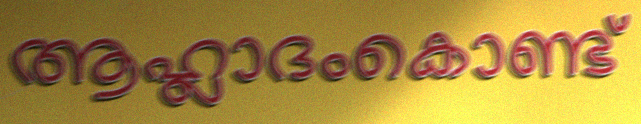
ആഹ്ലാദംകൊണ്ട്